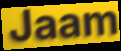
Jaam